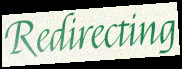
Redirecting